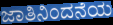
ಜಾತಿನಿಂದನೆಯ